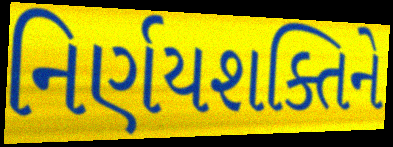
નિર્ણયશક્તિને